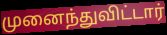
முனைந்துவிட்டார்